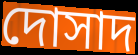
দোসাদ